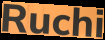
Ruchi